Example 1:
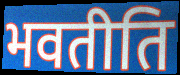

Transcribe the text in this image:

भवतीति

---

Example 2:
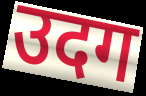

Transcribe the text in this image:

उदग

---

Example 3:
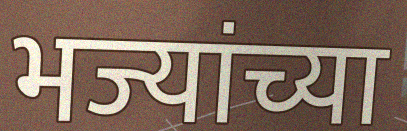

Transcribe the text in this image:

भज्यांच्या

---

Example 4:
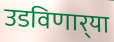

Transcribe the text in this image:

उडविणार्‍या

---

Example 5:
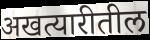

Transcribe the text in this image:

अखत्यारीतील